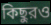
কিছুরও